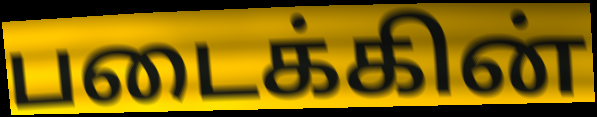
படைக்கின்